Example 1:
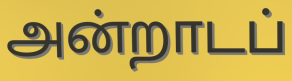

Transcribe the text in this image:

அன்றாடப்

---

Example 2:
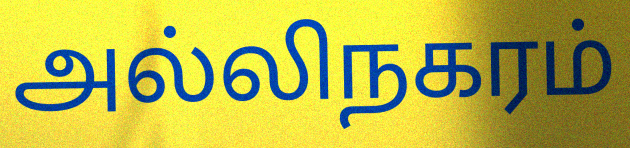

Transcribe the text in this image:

அல்லிநகரம்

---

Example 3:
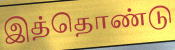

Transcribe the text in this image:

இத்தொண்டு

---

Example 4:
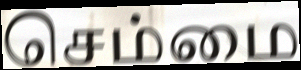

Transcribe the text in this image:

செம்மை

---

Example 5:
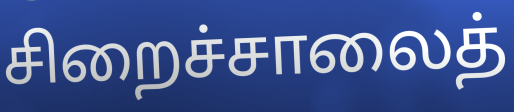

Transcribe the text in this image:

சிறைச்சாலைத்